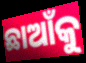
ଛାଆଁକୁ